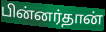
பின்னர்தான்